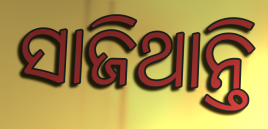
ସାଜିଥାନ୍ତି